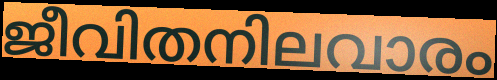
ജീവിതനിലവാരം